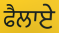
ਫੈਲਾਏ